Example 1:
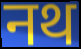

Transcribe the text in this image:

नथ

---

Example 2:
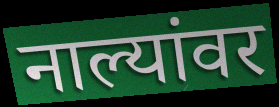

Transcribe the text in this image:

नाल्यांवर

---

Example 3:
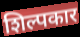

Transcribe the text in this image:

शिल्पकार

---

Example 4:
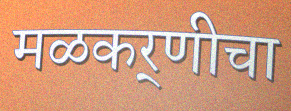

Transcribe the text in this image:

मळकर्णीचा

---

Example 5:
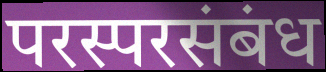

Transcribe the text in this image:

परस्परसंबंध